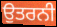
ਉਤਰਨੀ